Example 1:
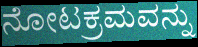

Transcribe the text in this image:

ನೋಟಕ್ರಮವನ್ನು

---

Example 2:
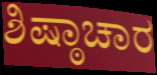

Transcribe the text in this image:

ಶಿಷ್ಠಾಚಾರ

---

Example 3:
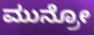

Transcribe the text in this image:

ಮುನ್ರೋ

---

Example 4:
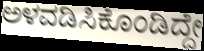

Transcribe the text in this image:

ಅಳವಡಿಸಿಕೊಂಡಿದ್ದೇ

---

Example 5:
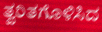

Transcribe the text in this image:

ತ್ವರಿತಗೊಳಿಸಿದ